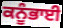
ਕਨੂੰਭਾਈ